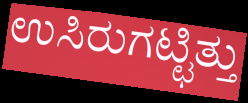
ಉಸಿರುಗಟ್ಟಿತ್ತು